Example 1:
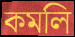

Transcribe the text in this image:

কমলি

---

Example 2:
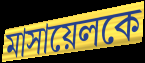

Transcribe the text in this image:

মাসায়েলকে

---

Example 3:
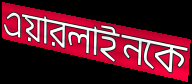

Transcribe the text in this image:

এয়ারলাইনকে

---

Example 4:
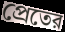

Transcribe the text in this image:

প্রেতের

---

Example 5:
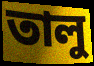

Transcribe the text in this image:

তালু